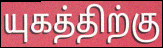
யுகத்திற்கு